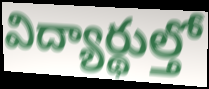
విద్యార్థుల్తో